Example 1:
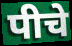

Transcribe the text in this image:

पीचे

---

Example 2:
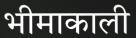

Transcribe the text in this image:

भीमाकाली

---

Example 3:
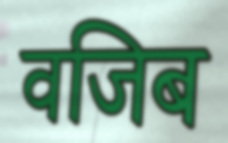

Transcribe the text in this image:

वजिब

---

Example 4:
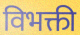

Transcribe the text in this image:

विभक्ती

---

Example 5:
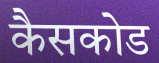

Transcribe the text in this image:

कैसकोड